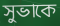
সুভাকে